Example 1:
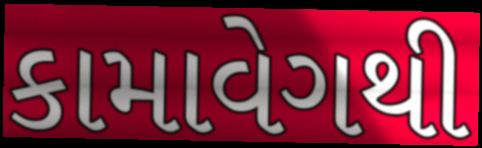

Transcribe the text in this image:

કામાવેગથી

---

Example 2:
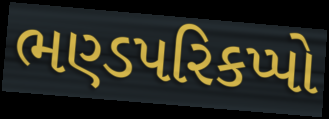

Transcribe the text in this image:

ભણ્ડપરિકપ્પો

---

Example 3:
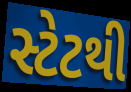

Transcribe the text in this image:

સ્ટેટથી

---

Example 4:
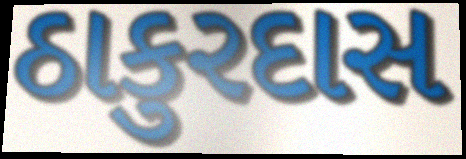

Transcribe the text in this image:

ઠાકુરદાસ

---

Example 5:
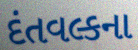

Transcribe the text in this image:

દંતવલ્કના